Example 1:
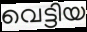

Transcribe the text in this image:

വെട്ടിയ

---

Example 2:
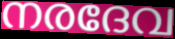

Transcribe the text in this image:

നരദേവ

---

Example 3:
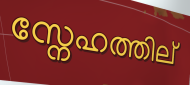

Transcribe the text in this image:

സ്നേഹത്തില്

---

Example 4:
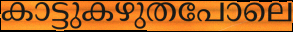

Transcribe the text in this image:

കാട്ടുകഴുതപോലെ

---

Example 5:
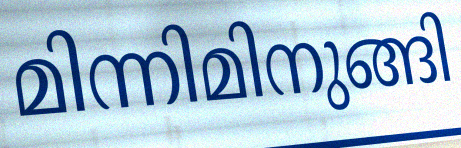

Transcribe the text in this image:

മിന്നിമിനുങ്ങി